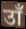
उाँ